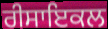
ਰੀਸਾਇਕਲ